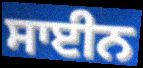
ਸਾਈਨ